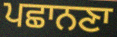
ਪਛਾਨਣਾ